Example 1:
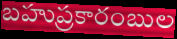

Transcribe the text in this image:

బహుప్రకారంబుల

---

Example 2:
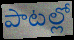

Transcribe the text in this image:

పాటల్లో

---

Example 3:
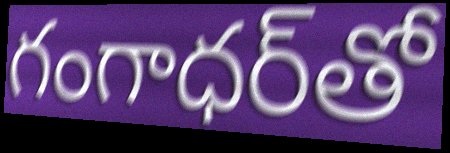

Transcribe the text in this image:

గంగాధర్‌తో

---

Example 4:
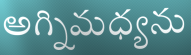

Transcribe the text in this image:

అగ్నిమధ్యను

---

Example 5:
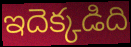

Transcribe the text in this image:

ఇదెక్కడిది